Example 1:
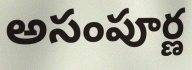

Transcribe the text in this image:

అసంపూర్ణ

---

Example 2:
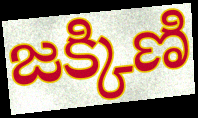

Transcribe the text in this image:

జక్కిణి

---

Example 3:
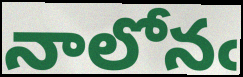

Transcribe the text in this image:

నాలోనఁ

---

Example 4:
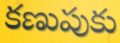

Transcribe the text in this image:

కణుపుకు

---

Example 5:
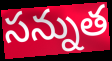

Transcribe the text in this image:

సన్నుత